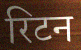
रिटन